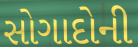
સોગાદોની